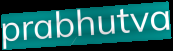
prabhutva